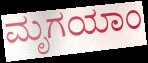
ಮೃಗಯಾಂ